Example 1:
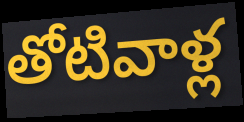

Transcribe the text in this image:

తోటివాళ్ల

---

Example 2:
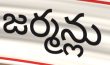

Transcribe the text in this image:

జర్మన్లు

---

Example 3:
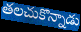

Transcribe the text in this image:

తలచుకొన్నాడు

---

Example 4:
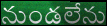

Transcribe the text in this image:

నుండలేను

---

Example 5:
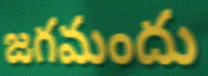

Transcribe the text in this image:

జగమందు